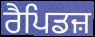
ਰੈਪਿਡਜ਼